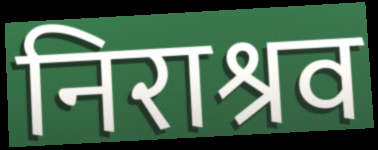
निराश्रव